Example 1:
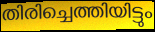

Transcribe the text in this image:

തിരിച്ചെത്തിയിട്ടും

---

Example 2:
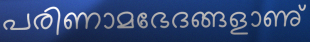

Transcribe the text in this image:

പരിണാമഭേദങ്ങളാണു്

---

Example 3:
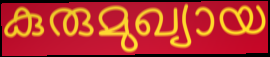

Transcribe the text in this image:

കുരുമുഖ്യായ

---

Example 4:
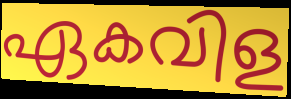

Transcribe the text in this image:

ഏകവിള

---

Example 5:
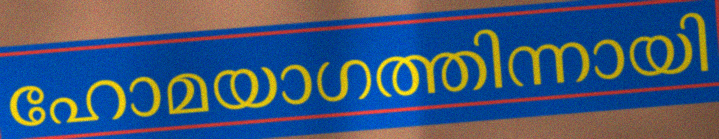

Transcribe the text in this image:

ഹോമയാഗത്തിന്നായി